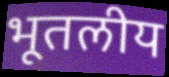
भूतलीय